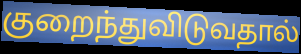
குறைந்துவிடுவதால்